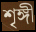
শৃঙ্গী